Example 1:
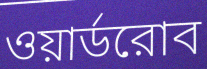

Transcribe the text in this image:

ওয়ার্ডরোব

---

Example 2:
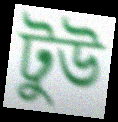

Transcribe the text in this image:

টুউ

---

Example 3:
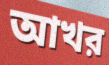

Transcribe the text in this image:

আখর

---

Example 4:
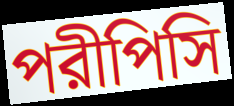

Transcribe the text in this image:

পরীপিসি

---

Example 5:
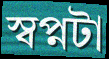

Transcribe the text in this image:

স্বপ্নটা